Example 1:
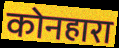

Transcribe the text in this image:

कोनहारा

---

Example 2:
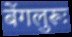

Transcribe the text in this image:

बेंगलुरूः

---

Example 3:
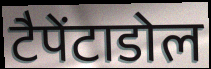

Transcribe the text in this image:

टैपेंटाडोल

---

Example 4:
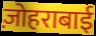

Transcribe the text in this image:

ज़ोहराबाई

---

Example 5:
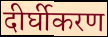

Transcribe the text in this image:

दीर्घीकरण